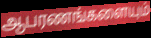
ஆபரணங்களையும்